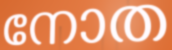
നോത